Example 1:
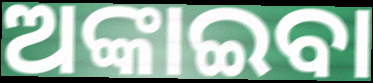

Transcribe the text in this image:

ଅଙ୍କାଇବା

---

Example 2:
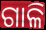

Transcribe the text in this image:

ଗାଳି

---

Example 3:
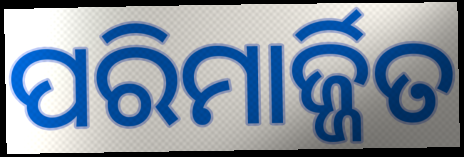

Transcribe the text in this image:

ପରିମାର୍ଜ୍ଜିତ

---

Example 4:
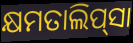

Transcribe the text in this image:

କ୍ଷମତାଲିପ୍‍ସା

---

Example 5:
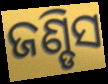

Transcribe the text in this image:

ଜଣ୍ଡିସ